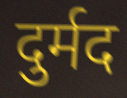
दुर्मद